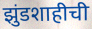
झुंडशाहीची